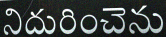
నిదురించెను